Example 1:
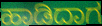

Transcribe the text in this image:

ಹಾಡಿದಾಗ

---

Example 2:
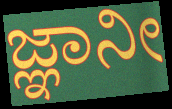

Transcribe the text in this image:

ಜ್ಞಾನೀ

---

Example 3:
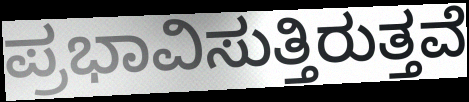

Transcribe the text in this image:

ಪ್ರಭಾವಿಸುತ್ತಿರುತ್ತವೆ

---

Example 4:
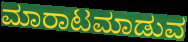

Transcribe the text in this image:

ಮಾರಾಟಮಾಡುವ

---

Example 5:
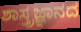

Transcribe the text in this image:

ಶಾಸ್ತ್ರಜ್ಞಾನದ